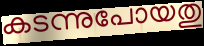
കടന്നുപോയതു